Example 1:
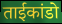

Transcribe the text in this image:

ताईकांडो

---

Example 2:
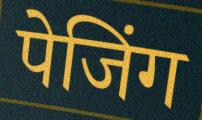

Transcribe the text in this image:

पेजिंग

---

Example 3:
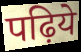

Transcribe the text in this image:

पढ़िये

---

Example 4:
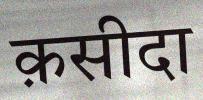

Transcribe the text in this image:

क़सीदा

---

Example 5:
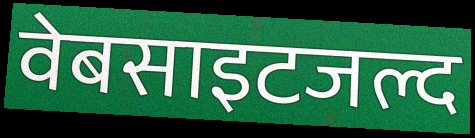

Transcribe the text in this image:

वेबसाइटजल्द